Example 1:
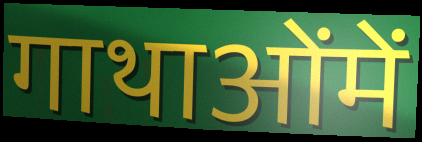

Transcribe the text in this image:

गाथाओंमें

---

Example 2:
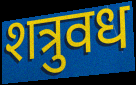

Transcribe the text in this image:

शत्रुवध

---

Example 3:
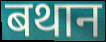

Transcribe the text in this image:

बथान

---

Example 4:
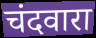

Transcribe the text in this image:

चंदवारा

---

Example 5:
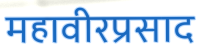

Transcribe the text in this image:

महावीरप्रसाद